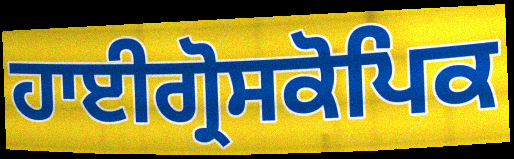
ਹਾਈਗ੍ਰੋਸਕੋਪਿਕ